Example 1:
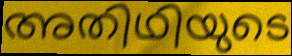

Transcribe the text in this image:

അതിഥിയുടെ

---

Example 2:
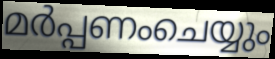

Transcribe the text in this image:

മർപ്പണംചെയ്യും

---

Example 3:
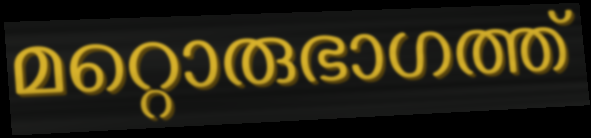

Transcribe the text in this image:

മറ്റൊരുഭാഗത്ത്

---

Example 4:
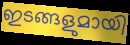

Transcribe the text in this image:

ഇടങ്ങളുമായി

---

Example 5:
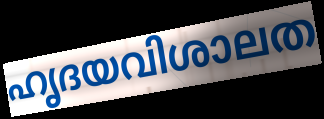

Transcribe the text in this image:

ഹൃദയവിശാലത